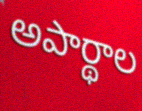
అపార్థాల